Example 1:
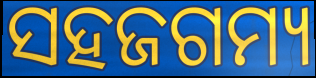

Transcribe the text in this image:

ସହଜଗମ୍ୟ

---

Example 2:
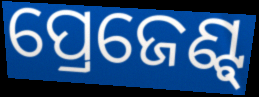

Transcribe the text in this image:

ପ୍ରେଜେଣ୍ଟ୍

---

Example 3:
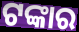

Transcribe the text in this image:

ଟଙ୍କାର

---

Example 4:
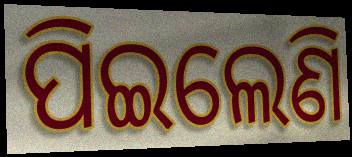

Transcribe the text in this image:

ପିଇଲେଣି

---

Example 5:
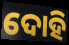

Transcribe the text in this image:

ଦୋହି